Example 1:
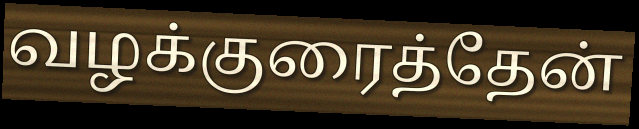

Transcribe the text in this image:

வழக்குரைத்தேன்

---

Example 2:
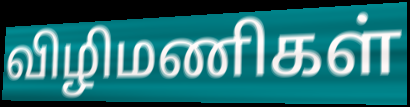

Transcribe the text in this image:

விழிமணிகள்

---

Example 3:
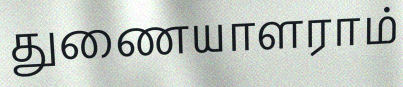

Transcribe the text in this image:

துணையாளராம்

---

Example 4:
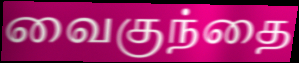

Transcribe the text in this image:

வைகுந்தை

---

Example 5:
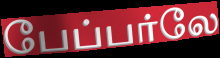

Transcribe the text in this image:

பேப்பர்லே